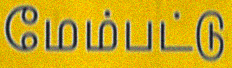
மேம்பட்டு